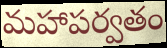
మహాపర్వతం